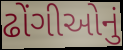
ઢોંગીઓનું